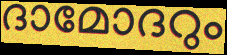
ദാമോദറും